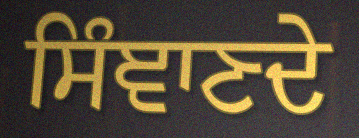
ਸਿੰਞਾਣਦੇ